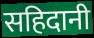
सहिदानी